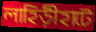
লাহিড়ীহাটে